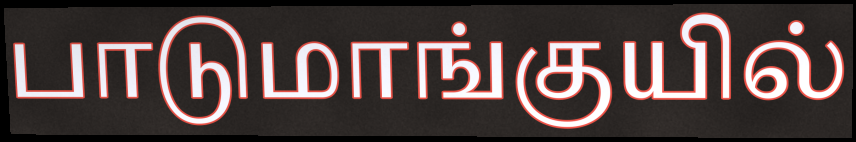
பாடுமாங்குயில்